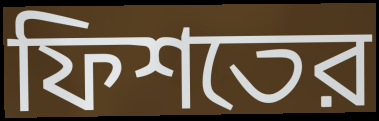
ফিশতের